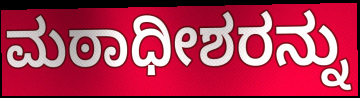
ಮಠಾಧೀಶರನ್ನು